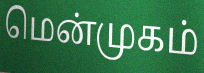
மென்முகம்